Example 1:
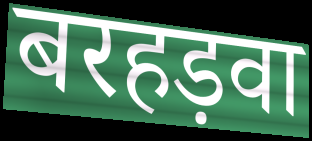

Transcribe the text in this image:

बरहड़वा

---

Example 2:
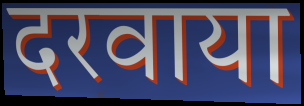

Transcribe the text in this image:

दरवाया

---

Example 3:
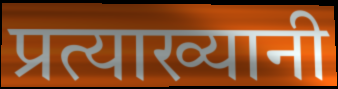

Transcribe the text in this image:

प्रत्याख्यानी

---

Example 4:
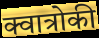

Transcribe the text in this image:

क्वात्रोकी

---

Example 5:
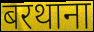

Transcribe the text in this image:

बरथाना